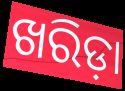
ଖରିଡ଼ା